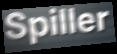
Spiller